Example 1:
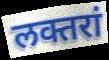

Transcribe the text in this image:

लक्तरां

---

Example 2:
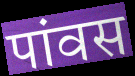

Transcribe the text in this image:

पांवस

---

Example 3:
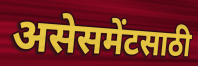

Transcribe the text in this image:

असेसमेंटसाठी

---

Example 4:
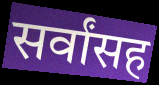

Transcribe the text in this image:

सर्वांसह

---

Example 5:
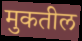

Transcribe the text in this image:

मुकतील